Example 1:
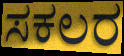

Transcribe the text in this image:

ಸಕಲರ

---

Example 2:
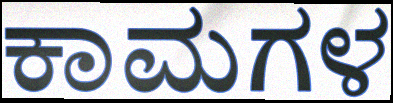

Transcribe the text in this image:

ಕಾಮಗಳ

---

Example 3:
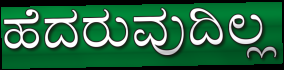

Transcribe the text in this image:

ಹೆದರುವುದಿಲ್ಲ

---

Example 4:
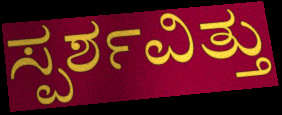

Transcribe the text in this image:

ಸ್ಪರ್ಶವಿತ್ತು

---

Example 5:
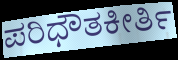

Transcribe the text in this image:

ಪರಿಧೌತಕೀರ್ತಿ